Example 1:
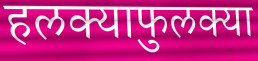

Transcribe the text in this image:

हलक्याफुलक्या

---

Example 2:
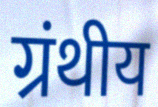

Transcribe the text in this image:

ग्रंथीय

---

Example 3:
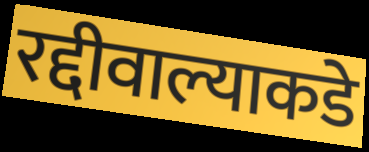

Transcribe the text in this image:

रद्दीवाल्याकडे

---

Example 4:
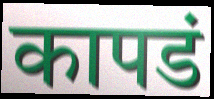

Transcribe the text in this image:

कापडं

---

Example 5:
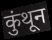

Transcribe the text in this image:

कुंथून